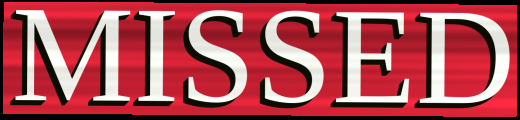
MISSED